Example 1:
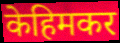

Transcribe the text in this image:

केहिमकर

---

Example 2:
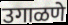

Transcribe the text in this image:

उगाळणे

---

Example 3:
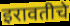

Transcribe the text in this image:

इरावतीचे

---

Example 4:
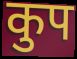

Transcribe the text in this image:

कुप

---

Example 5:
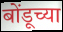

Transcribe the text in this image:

बोंडूच्या